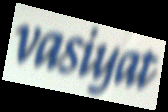
vasiyat